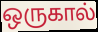
ஒருகால்